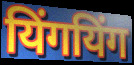
यिंगयिंग